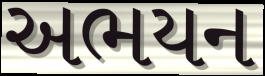
અભયન